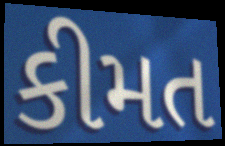
કીમત